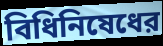
বিধিনিষেধের